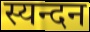
स्यन्दन